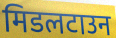
मिडलटाउन